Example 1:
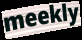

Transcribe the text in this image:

meekly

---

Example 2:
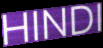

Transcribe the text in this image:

HINDI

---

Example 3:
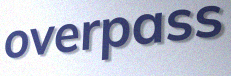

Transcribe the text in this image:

overpass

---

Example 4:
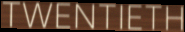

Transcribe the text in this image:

TWENTIETH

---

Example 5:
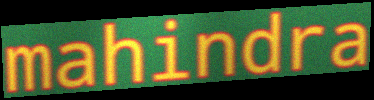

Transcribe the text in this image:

mahindra